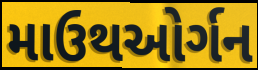
માઉથઓર્ગન